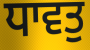
ਧਾਵਤੁ